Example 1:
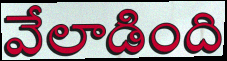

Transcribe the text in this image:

వేలాడింది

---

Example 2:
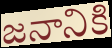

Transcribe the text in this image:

జనానికి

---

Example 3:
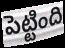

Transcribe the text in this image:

పెట్టింది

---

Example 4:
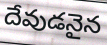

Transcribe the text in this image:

దేవుడనైన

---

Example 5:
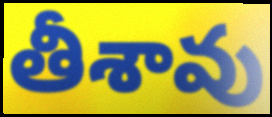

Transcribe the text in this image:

తీశావు